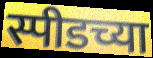
स्पीडच्या